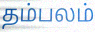
தம்பலம்